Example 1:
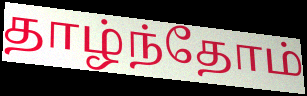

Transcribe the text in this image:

தாழ்ந்தோம்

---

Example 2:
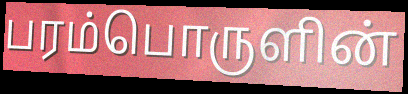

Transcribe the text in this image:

பரம்பொருளின்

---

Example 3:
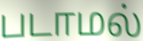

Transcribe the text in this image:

படாமல்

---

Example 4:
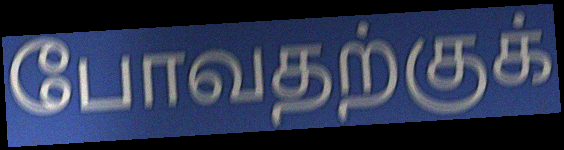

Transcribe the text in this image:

போவதற்குக்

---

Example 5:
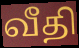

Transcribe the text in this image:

வீதி